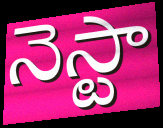
నెస్టా